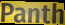
Panth